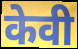
केवी